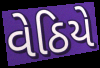
વેઠિયે